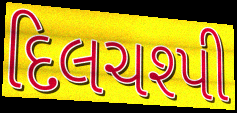
દિલચશ્પી